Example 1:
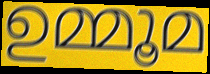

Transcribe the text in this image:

ഉമ്മൂമ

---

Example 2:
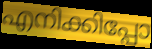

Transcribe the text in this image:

എനിക്കിപ്പോ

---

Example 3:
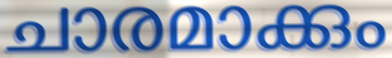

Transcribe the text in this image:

ചാരമാക്കും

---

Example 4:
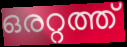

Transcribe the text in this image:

ഒരറ്റത്ത്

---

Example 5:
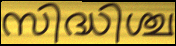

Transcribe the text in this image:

സിദ്ധിശ്ച